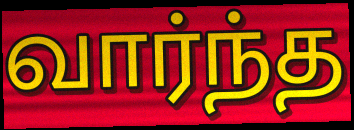
வார்ந்த